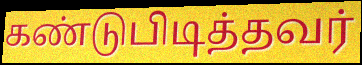
கண்டுபிடித்தவர்